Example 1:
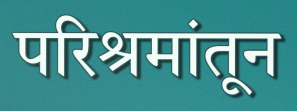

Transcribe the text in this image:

परिश्रमांतून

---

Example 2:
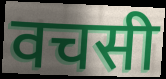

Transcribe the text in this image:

वचसी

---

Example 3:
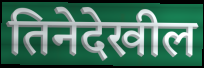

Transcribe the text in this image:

तिनेदेखील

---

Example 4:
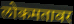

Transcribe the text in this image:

लोकमतावर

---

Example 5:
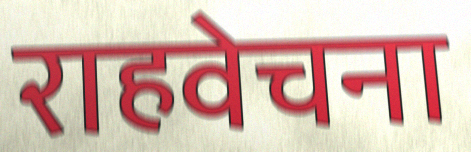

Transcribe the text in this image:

राहवेचना